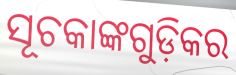
ସୂଚକାଙ୍କଗୁଡ଼ିକର